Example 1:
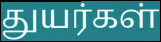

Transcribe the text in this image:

துயர்கள்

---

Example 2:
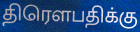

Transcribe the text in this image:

திரௌபதிக்கு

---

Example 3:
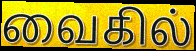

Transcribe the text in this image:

வைகில்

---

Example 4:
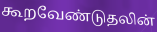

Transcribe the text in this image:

கூறவேண்டுதலின்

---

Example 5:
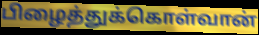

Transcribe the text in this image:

பிழைத்துக்கொள்வான்